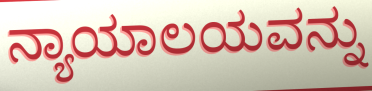
ನ್ಯಾಯಾಲಯವನ್ನು